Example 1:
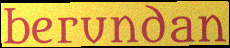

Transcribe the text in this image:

berundan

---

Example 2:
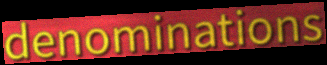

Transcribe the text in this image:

denominations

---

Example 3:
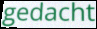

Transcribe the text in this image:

gedacht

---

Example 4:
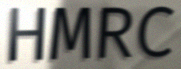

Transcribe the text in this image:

HMRC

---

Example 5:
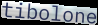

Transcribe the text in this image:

tibolone